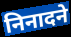
निनादने